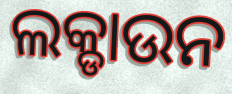
ଲକ୍ଡାଉନ